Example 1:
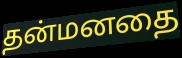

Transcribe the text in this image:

தன்மனதை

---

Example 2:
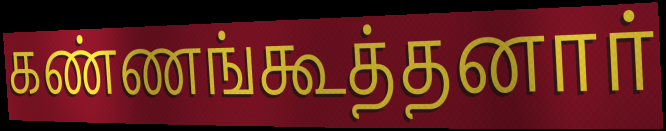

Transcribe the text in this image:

கண்ணங்கூத்தனார்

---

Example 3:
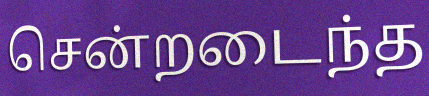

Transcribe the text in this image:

சென்றடைந்த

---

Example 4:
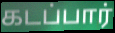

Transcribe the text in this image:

கடப்பார்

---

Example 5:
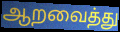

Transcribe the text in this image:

ஆறவைத்து